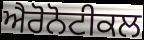
ਐਰੋਨੋਟੀਕਲ